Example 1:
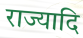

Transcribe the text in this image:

राज्यादि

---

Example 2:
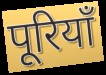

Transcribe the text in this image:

पूरियाँ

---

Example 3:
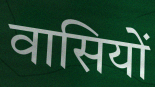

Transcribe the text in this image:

वासियों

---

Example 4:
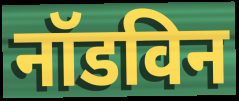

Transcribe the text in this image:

नॉडविन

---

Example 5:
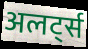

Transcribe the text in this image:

अलर्ट्स